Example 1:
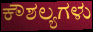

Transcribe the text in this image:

ಕೌಶಲ್ಯಗಳು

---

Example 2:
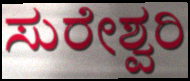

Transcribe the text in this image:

ಸುರೇಶ್ವರಿ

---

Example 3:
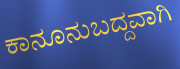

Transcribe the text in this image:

ಕಾನೂನುಬದ್ದವಾಗಿ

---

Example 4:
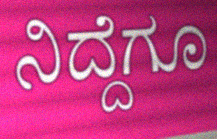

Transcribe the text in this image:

ನಿದ್ದೆಗೂ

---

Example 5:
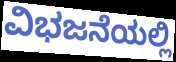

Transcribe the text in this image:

ವಿಭಜನೆಯಲ್ಲಿ